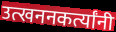
उत्खननकर्त्यांनी